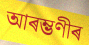
আৰম্ভণীৰ